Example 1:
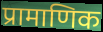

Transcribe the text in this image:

प्रामाणिक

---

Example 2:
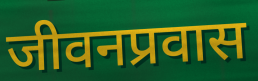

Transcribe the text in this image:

जीवनप्रवास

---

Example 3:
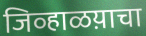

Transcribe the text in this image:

जिव्हाळय़ाचा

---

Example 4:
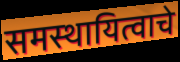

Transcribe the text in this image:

समस्थायित्वाचे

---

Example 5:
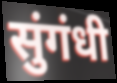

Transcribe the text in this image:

सुंगंधी